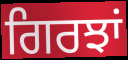
ਗਿਰਝਾਂ